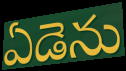
ఏడెను